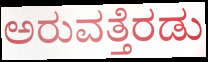
ಅರುವತ್ತೆರಡು